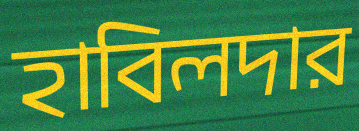
হাবিলদার